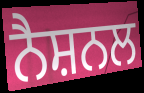
ਨੈਸ਼ਨਲ